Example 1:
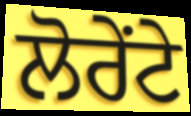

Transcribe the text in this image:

ਲੋਰੇਂਟੇ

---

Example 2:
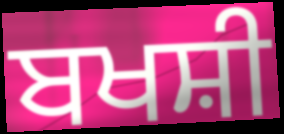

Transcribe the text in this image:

ਬਖਸ਼ੀ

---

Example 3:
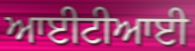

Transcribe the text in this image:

ਆਈਟੀਆਈ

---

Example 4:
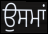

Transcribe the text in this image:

ਉਸਮਾਂ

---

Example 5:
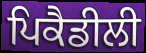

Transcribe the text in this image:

ਪਿਕੈਡੀਲੀ